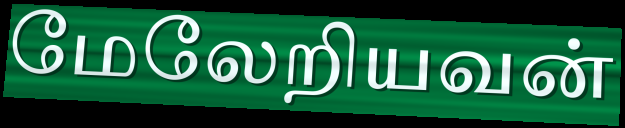
மேலேறியவன்